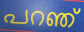
പറഞ്